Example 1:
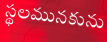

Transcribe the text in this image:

స్థలమునకును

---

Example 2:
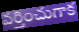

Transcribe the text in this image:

వర్తించుగాక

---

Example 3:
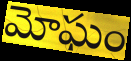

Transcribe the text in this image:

మోఘం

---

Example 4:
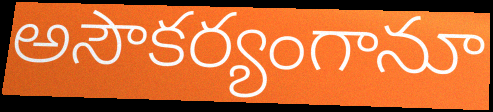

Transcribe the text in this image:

అసౌకర్యంగానూ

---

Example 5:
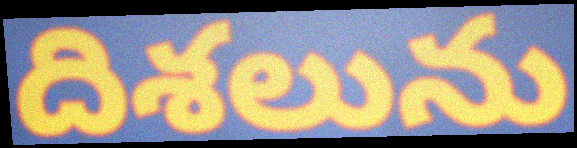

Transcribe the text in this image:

దిశలును